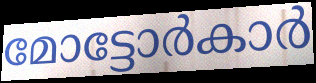
മോട്ടോർകാർ